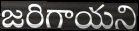
జరిగాయని